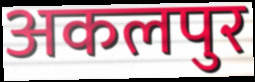
अकलपुर